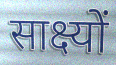
साक्ष्यों